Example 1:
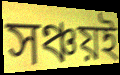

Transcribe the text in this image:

সঞ্চয়ই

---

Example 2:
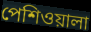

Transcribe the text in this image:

পেশিওয়ালা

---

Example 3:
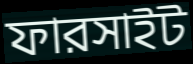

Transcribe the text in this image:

ফারসাইট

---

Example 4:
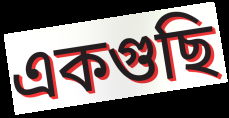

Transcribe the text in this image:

একগুছি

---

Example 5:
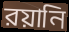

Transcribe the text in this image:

রয়ানি